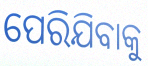
ପେରିଯିବାକୁ